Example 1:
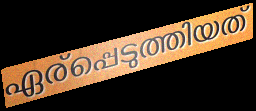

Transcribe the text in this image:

ഏര്പ്പെടുത്തിയത്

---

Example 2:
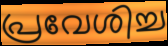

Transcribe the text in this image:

പ്രവേശിച്ച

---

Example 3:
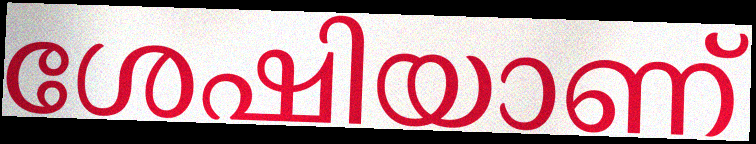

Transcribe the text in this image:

ശേഷിയാണ്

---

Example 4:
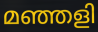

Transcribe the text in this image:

മഞ്ഞളി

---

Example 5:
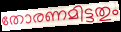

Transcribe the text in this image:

തോരണമിട്ടതും